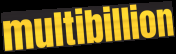
multibillion